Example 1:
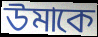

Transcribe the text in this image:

উমাকে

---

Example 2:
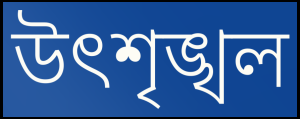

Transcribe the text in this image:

উৎশৃঙ্খল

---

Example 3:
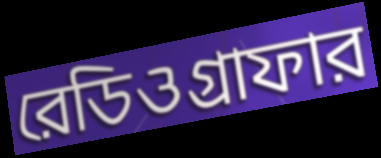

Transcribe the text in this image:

রেডিওগ্রাফার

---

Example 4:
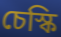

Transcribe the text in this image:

চেস্কি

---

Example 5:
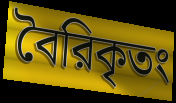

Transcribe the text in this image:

বৈরিকৃতং